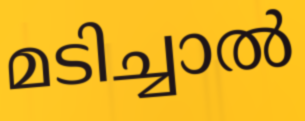
മടിച്ചാൽ